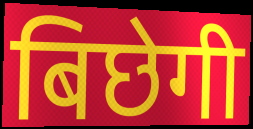
बिछेगी